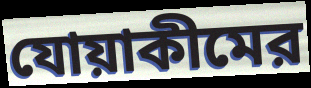
যোয়াকীমের